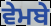
ਵੇਮਬੇ